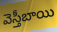
వెస్తీబాయి